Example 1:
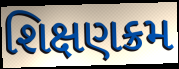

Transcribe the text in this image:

શિક્ષણક્રમ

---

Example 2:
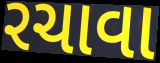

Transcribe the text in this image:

રચાવા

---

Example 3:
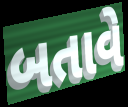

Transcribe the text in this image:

બતાવે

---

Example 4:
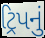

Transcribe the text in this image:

ટ્રિપનું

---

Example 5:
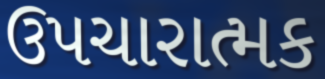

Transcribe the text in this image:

ઉપચારાત્મક